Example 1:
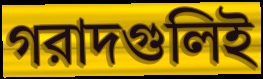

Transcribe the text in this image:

গরাদগুলিই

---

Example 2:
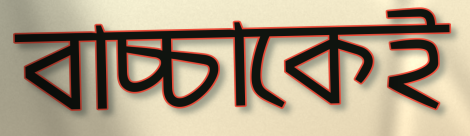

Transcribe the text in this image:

বাচ্চাকেই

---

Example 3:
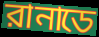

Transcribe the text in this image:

রানাডে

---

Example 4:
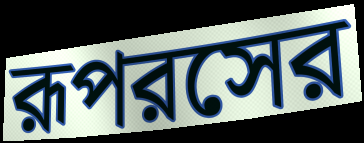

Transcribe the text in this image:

রূপরসের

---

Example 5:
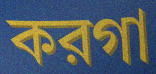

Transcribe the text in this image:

করগা